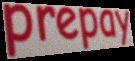
prepay